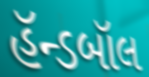
હૅન્ડબૉલ